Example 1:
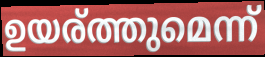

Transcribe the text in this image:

ഉയര്ത്തുമെന്ന്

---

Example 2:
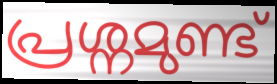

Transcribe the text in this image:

പ്രശ്നമുണ്ട്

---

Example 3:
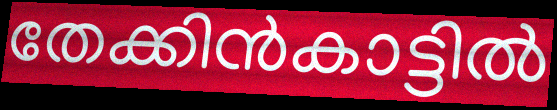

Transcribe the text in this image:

തേക്കിൻകാട്ടിൽ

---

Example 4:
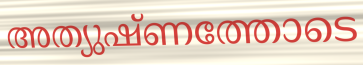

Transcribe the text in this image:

അത്യുഷ്ണത്തോടെ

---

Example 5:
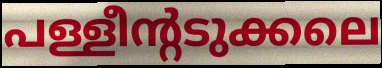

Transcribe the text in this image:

പള്ളീന്റടുക്കലെ